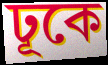
ঢূকে